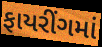
ફાયરીંગમાં